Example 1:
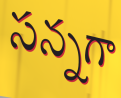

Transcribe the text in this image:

సన్నగా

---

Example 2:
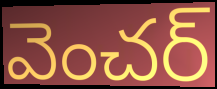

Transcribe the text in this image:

వెంచర్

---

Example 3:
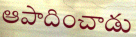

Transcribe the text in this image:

ఆపాదించాడు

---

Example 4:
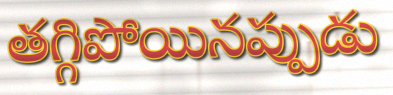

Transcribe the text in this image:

తగ్గిపోయినప్పుడు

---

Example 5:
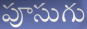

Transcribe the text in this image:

పూసుగు